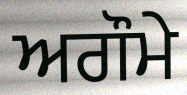
ਅਗੌਮੇ